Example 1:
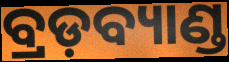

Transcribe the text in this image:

ବ୍ରଡ଼ବ୍ୟାଣ୍ଡ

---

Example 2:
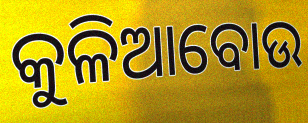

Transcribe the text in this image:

କୁଳିଆବୋଉ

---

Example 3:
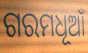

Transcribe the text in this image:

ଗରମଧୂଆଁ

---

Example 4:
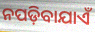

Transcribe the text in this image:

ନପଡ଼ିବାଯାଏଁ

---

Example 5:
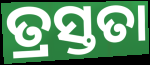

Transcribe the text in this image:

ତ୍ରସ୍ତତା